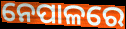
ନେପାଳରେ